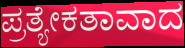
ಪ್ರತ್ಯೇಕತಾವಾದ